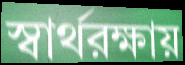
স্বার্থরক্ষায়